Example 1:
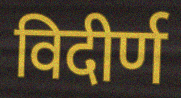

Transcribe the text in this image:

विदीर्ण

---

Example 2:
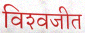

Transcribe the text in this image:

विश्वजीत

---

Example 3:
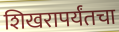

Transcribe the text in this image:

शिखरापर्यंतचा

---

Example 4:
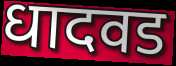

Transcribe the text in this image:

धादवड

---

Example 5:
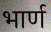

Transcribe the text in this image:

भार्ण